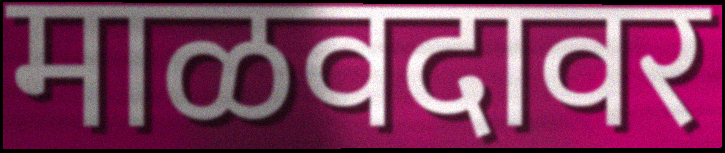
माळवदावर